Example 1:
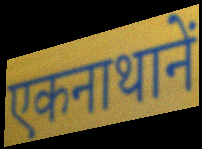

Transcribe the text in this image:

एकनाथानें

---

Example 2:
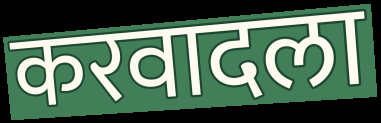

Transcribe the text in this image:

करवादला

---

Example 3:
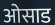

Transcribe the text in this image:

ओसाड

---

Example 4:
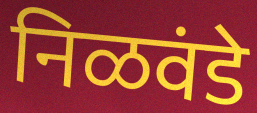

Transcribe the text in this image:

निळवंडे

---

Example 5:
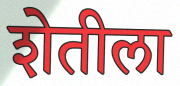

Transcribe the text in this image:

शेतीला